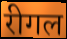
रीगल